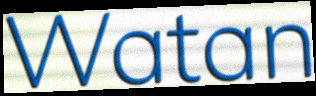
Watan